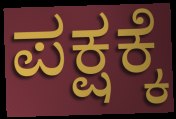
ಪಕ್ಷಕ್ಕೆ